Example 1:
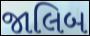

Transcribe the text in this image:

જાલિબ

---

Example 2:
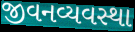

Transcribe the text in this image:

જીવનવ્યવસ્થા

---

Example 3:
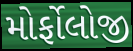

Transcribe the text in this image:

મોર્ફોલોજી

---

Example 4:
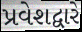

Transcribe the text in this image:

પ્રવેશદ્વારે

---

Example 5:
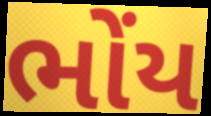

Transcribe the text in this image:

ભોંય